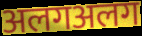
अलगअलग